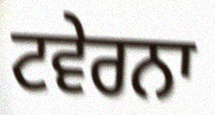
ਟਵੇਰਨਾ